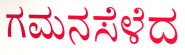
ಗಮನಸೆಳೆದ